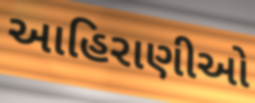
આહિરાણીઓ